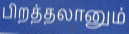
பிறத்தலானும்